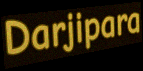
Darjipara